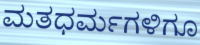
ಮತಧರ್ಮಗಳಿಗೂ